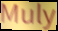
Muly